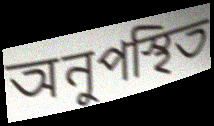
অনুপস্থিত